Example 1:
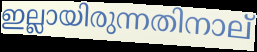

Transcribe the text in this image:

ഇല്ലായിരുന്നതിനാല്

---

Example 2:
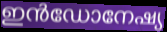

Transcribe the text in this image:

ഇൻഡോനേഷ്യ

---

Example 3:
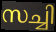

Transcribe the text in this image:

സച്ചി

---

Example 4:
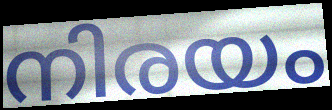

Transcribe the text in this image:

നിരയം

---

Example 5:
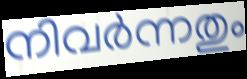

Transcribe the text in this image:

നിവർന്നതും